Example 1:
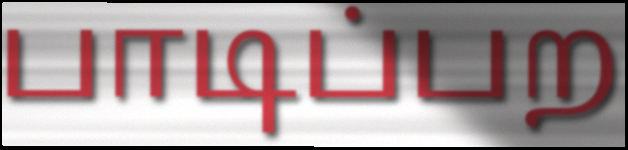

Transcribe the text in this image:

பாடிப்பற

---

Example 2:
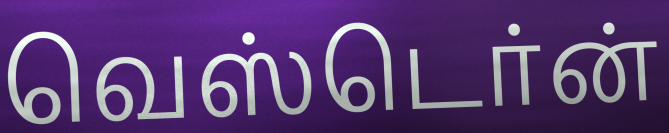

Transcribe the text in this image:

வெஸ்டெர்ன்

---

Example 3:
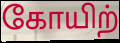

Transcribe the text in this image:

கோயிற்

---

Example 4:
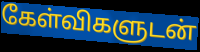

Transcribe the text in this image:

கேள்விகளுடன்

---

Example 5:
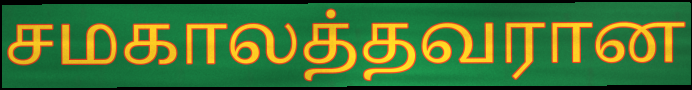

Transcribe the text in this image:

சமகாலத்தவரான